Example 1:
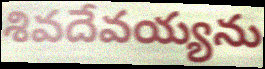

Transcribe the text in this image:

శివదేవయ్యను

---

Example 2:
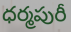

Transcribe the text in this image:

ధర్మపురీ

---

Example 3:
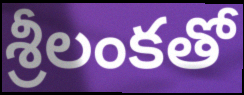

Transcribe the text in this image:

శ్రీలంకతో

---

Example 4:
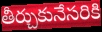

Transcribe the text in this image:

తీర్చుకునేసరికి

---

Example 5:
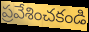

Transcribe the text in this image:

ప్రవేశించకండి